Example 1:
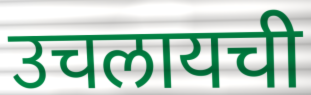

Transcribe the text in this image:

उचलायची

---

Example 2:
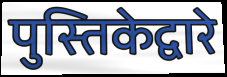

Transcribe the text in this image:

पुस्तिकेद्वारे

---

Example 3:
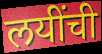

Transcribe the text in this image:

लयींची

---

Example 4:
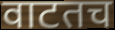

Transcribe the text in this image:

वाटतच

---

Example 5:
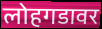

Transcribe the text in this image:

लोहगडावर